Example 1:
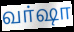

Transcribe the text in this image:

வர்ஷா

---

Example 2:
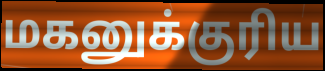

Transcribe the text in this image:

மகனுக்குரிய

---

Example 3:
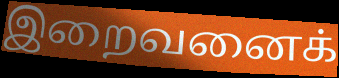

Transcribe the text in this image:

இறைவனைக்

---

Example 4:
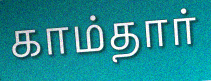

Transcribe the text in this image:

காம்தார்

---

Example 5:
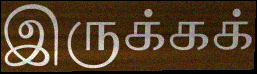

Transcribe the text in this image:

இருக்கக்